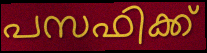
പസഫിക്ക്